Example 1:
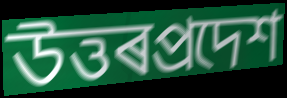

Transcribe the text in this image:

উত্তৰপ্ৰদেশ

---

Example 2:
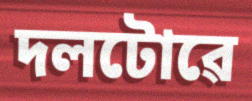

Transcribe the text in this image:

দলটোৱে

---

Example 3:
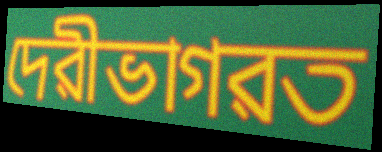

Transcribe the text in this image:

দেৱীভাগৱত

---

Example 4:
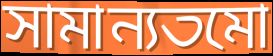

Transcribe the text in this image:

সামান্যতমো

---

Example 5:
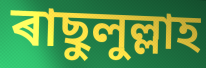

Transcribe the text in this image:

ৰাছুলুল্লাহ